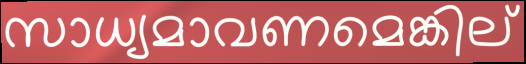
സാധ്യമാവണമെങ്കില്